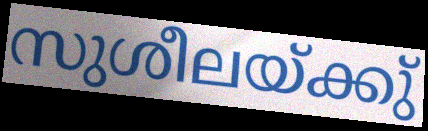
സുശീലയ്ക്കു്